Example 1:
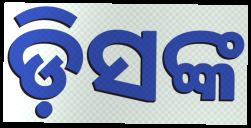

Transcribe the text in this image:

ଡ଼ିସଙ୍କ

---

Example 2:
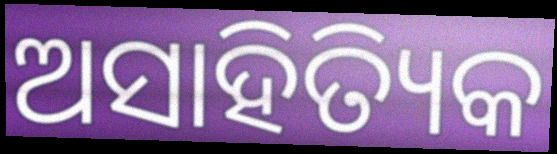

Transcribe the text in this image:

ଅସାହିତ୍ୟିକ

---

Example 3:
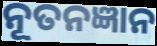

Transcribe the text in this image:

ନୂତନଜ୍ଞାନ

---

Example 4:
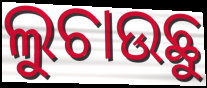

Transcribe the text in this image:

ଲୁଚାଉଛୁ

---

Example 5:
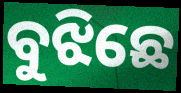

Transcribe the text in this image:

ବୁଝିଛେ